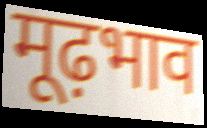
मूढ़भाव